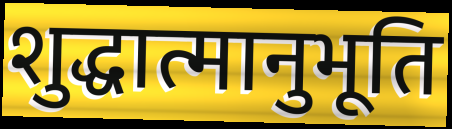
शुद्धात्मानुभूति